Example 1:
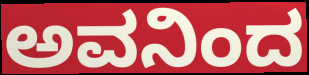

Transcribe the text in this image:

ಅವನಿಂದ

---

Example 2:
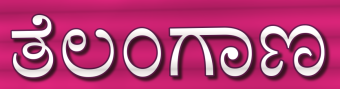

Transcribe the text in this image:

ತೆಲಂಗಾಣ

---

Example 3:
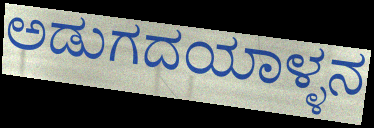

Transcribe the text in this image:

ಅಡುಗದಯಾಳ್ಳನ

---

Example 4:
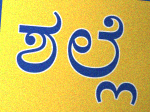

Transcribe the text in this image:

ಶಲ್ಲೆ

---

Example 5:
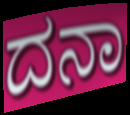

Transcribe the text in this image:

ದನಾ